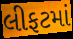
લીફટમાં